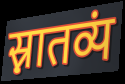
स्नातव्यं